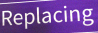
Replacing